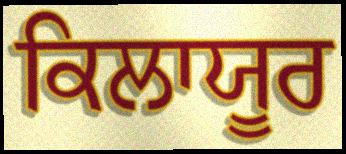
ਕਿਲਾਯੂਰ